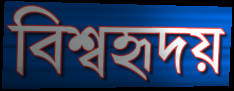
বিশ্বহৃদয়